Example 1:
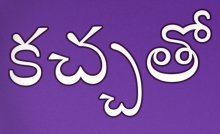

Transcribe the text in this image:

కచ్చతో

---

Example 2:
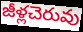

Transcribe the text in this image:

జీళ్లచెరువు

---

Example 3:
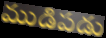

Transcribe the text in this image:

ముడిపడు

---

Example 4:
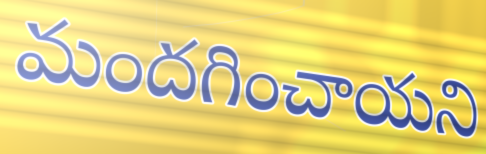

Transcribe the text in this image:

మందగించాయని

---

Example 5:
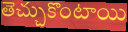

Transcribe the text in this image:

తెచ్చుకొంటాయి